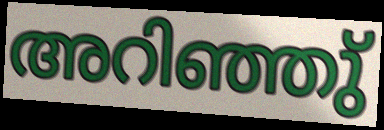
അറിഞ്ഞു്